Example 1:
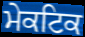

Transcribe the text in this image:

ਮੇਕਟਿਕ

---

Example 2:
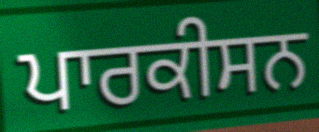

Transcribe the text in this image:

ਪਾਰਕੀਸਨ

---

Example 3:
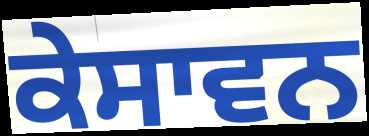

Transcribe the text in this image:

ਕੇਸਾਵਨ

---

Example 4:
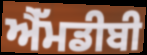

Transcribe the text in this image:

ਐੱਮਡੀਬੀ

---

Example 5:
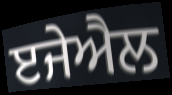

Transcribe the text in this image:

ੲਜੇਐਲ